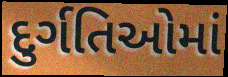
દુર્ગતિઓમાં